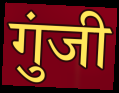
गुंजी